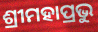
ଶ୍ରୀମହାପ୍ରଭୁ